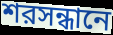
শরসন্ধানে